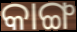
କାଙ୍ଗ